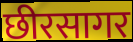
छीरसागर